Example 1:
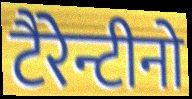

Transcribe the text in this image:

टैरेन्टीनो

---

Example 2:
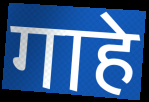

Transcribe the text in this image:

गाहे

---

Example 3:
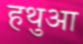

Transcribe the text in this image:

हथुआ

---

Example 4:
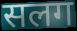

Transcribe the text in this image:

सलग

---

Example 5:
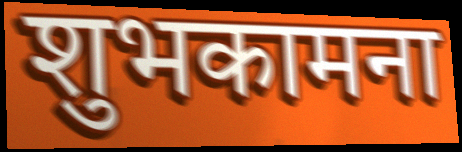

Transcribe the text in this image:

शुभकामना